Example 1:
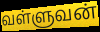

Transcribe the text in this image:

வள்ளுவன்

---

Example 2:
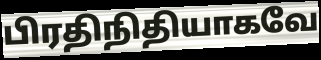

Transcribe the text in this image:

பிரதிநிதியாகவே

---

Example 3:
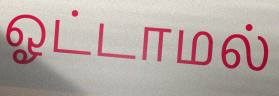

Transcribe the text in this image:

ஓட்டாமல்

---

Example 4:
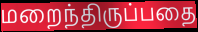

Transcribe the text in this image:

மறைந்திருப்பதை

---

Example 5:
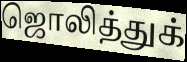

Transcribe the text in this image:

ஜொலித்துக்